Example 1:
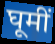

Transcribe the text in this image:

घूमीं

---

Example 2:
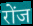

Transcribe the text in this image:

रोंज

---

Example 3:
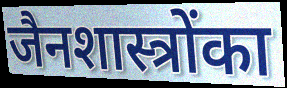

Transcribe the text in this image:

जैनशास्त्रोंका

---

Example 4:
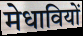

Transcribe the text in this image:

मेधावियों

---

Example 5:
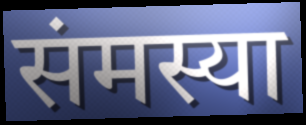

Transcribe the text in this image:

संमस्या